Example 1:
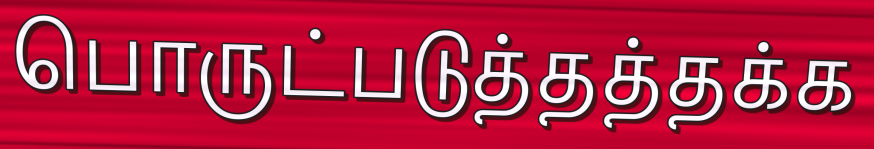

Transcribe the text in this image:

பொருட்படுத்தத்தக்க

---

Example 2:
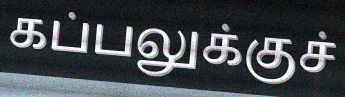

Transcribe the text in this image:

கப்பலுக்குச்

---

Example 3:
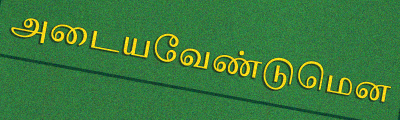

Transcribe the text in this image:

அடையவேண்டுமென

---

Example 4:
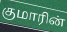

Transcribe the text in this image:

குமாரின்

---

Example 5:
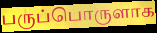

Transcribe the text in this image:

பருப்பொருளாக